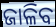
ଜାଳିବ